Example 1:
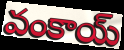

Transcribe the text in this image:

వంకాయ్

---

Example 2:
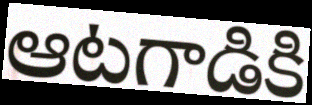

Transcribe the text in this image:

ఆటగాడికి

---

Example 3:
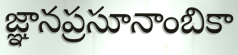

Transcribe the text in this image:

జ్ఞానప్రసూనాంబికా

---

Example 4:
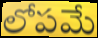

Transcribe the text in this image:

లోపమే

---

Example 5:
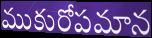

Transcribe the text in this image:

ముకురోపమాన